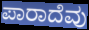
ಪಾರಾದೆವು